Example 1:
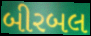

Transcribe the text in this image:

બીરબલ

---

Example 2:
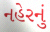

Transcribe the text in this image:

નહેરનું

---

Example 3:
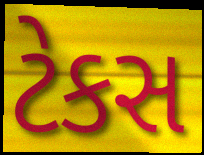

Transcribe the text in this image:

ટેકસ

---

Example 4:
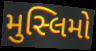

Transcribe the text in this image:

મુસ્લિમો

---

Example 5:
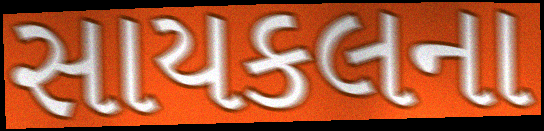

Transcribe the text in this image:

સાયકલના